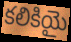
కలికియై